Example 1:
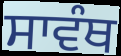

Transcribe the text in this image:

ਸਾਵੰਥ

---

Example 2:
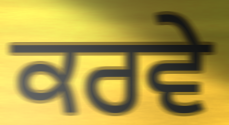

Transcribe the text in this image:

ਕਰਵੇ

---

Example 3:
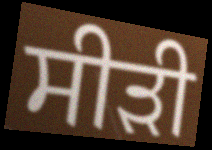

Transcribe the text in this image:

ਸੀੜੀ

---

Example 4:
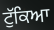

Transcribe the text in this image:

ਟੁੱਕਿਆ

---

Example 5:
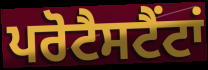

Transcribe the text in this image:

ਪਰੋਟੈਸਟੈਂਟਾਂ